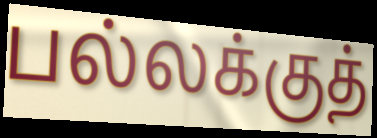
பல்லக்குத்